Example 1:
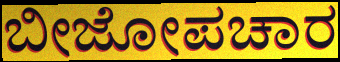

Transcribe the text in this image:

ಬೀಜೋಪಚಾರ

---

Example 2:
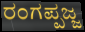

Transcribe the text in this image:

ರಂಗಪ್ಪಜ್ಜ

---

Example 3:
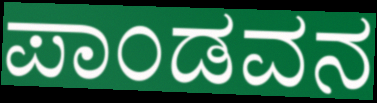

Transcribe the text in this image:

ಪಾಂಡವನ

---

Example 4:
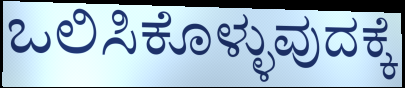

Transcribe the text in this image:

ಒಲಿಸಿಕೊಳ್ಳುವುದಕ್ಕೆ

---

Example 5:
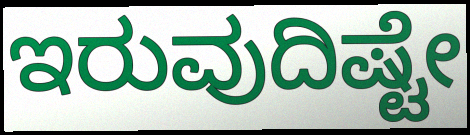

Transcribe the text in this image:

ಇರುವುದಿಷ್ಟೇ